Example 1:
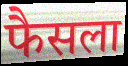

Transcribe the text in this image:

फैसला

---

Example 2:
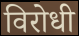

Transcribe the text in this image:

विरोधी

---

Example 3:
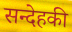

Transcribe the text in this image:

सन्देहकी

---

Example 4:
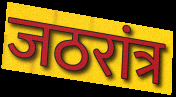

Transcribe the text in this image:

जठरांत्र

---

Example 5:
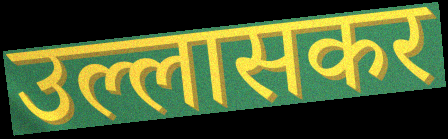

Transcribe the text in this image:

उल्लासकर